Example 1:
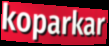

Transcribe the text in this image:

koparkar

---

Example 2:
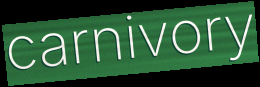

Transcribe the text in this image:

carnivory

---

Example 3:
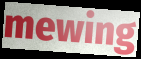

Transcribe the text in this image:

mewing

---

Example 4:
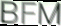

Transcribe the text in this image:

BFM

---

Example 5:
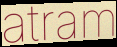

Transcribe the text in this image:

atram